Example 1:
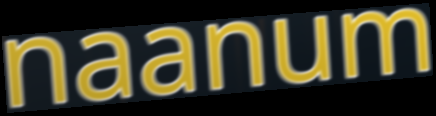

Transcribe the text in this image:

naanum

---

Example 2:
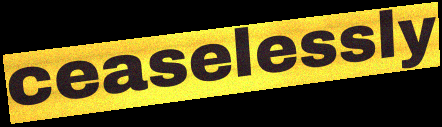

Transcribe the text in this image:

ceaselessly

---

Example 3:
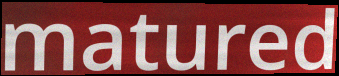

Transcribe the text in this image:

matured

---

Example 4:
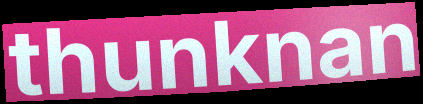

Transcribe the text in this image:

thunknan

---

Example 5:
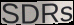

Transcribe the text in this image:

SDRs